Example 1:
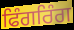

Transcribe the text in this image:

ਫਿੰਗਰਿੰਗ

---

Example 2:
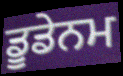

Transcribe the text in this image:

ਡੂਡੇਨਮ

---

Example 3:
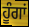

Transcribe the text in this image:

ਹੂੰਗਾਂ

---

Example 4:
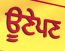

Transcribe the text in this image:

ਊਣੇਪਣ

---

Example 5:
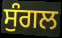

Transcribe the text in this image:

ਸੁੰਗਲ